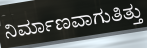
ನಿರ್ಮಾಣವಾಗುತಿತ್ತು